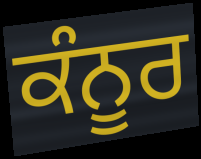
ਕੰਨੂਰ